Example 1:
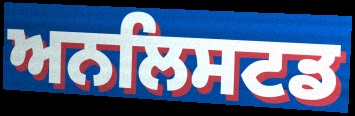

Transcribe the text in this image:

ਅਨਲਿਸਟਡ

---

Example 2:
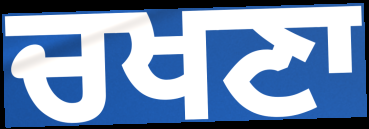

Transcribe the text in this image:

ਚਖਣਾ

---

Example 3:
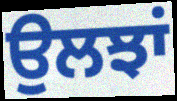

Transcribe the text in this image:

ਉਲਝਾਂ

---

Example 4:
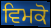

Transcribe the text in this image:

ਵਿਮਕੋ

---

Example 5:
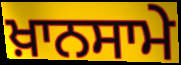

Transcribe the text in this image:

ਖ਼ਾਨਸਾਮੇ